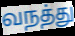
வநத்து